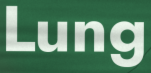
Lung